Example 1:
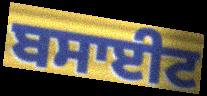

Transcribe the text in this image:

ਬਸਾਈਟ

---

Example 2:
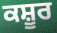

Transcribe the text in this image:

ਕਸ਼ੂਰ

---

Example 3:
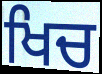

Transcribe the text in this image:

ਖਿਚ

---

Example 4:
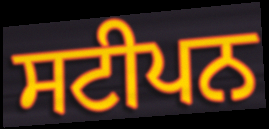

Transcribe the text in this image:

ਸਟੀਪਨ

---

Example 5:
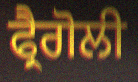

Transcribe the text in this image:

ਫ੍ਰੈਗੋਲੀ